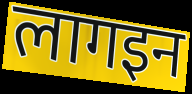
लागइन